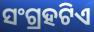
ସଂଗ୍ରହଟିଏ